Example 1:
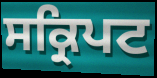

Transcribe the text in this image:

ਸਕ੍ਰਿਪਟ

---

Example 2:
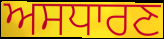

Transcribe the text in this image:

ਅਸਧਾਰਣ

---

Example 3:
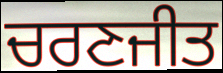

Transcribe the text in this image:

ਚਰਣਜੀਤ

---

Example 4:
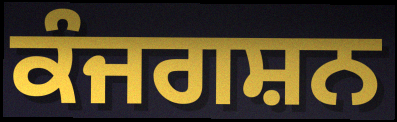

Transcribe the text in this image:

ਕੰਜਗਸ਼ਨ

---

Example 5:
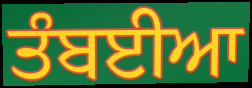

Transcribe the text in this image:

ਤੰਬਈਆ